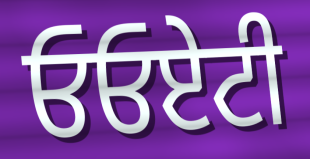
ਓਓਏਟੀ